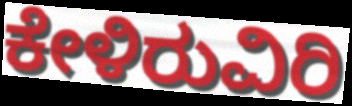
ಕೇಳಿರುವಿರಿ